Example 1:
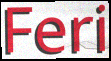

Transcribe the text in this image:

Feri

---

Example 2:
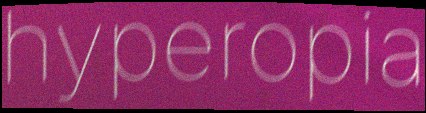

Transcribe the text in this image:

hyperopia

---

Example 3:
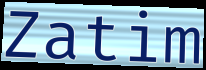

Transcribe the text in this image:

Zatim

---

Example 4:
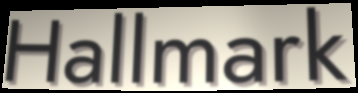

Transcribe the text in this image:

Hallmark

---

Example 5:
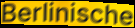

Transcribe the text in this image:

Berlinische